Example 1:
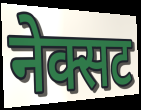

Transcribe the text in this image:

नेक्सट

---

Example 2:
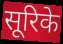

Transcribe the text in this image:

सूरिके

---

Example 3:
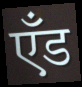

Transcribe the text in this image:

एँड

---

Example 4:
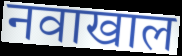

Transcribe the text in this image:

नवाखाल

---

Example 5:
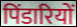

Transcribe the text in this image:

पिंडारियों